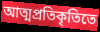
আত্মপ্রতিকৃতিতে